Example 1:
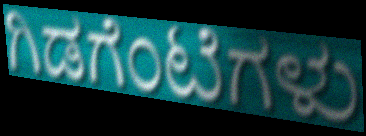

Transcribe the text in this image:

ಗಿಡಗೆಂಟೆಗಳು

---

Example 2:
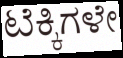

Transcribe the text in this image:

ಟೆಕ್ಕಿಗಳೇ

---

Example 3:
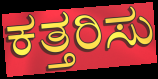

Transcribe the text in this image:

ಕತ್ತರಿಸು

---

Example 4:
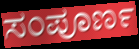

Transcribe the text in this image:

ಸಂಪೂರ್ಣ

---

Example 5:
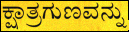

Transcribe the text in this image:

ಕ್ಷಾತ್ರಗುಣವನ್ನು